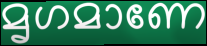
മൃഗമാണേ